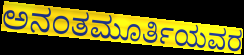
ಅನಂತಮೂರ್ತಿಯವರ